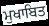
ਮੁਖਾਬਿਤ